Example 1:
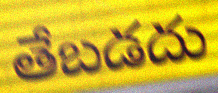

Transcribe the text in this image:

తేబడదు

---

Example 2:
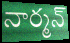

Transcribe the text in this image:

నార్మన్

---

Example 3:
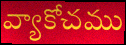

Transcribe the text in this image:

వ్యాకోచము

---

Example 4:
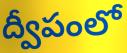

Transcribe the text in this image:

ద్వీపంలో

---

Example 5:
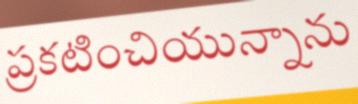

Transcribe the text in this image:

ప్రకటించియున్నాను